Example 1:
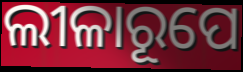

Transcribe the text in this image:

ଲୀଳାରୂପେ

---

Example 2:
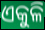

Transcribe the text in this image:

ଏକୁଳି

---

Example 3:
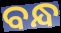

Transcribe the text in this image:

ବନ୍ଧ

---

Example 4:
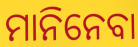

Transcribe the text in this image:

ମାନିନେବା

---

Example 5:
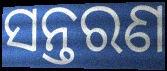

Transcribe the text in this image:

ସନ୍ତରଣ